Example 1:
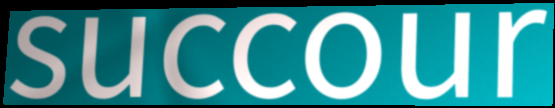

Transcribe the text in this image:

succour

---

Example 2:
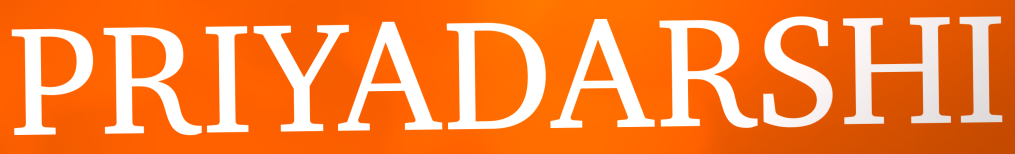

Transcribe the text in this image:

PRIYADARSHI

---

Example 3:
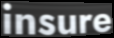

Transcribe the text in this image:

insure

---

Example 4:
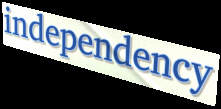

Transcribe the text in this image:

independency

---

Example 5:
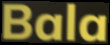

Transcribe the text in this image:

Bala